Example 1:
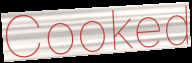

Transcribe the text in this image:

Cooked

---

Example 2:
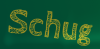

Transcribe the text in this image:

Schug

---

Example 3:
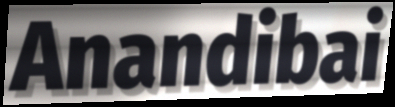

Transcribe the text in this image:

Anandibai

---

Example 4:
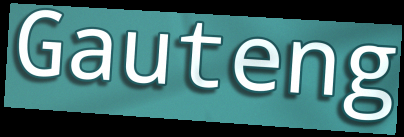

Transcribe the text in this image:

Gauteng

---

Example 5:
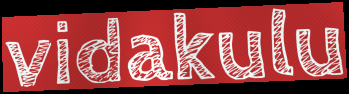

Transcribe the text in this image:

vidakulu